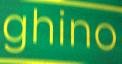
ghino